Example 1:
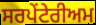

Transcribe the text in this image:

ਸਰਪੇਂਟੇਰੀਅਮ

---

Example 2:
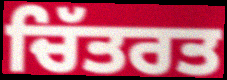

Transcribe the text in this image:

ਚਿੱਤਰਤ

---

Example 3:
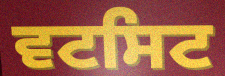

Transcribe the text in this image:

ਵਟਸਿਟ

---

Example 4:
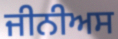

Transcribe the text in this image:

ਜੀਨੀਅਸ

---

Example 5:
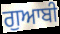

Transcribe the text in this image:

ਗੁਆਬੀ